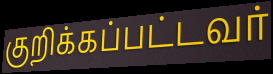
குறிக்கப்பட்டவர்